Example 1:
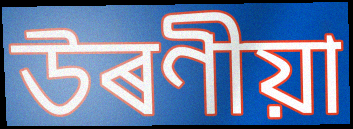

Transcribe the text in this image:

উৰণীয়া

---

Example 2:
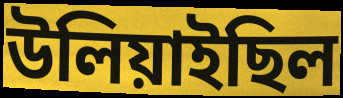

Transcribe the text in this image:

উলিয়াইছিল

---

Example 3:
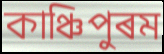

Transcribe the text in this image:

কাঞ্চিপুৰম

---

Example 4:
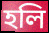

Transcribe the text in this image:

হলি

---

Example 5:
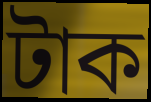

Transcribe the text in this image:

টাক